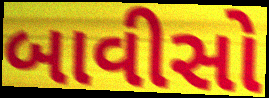
બાવીસો